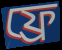
ফ্রে